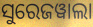
ସୁରେଜୱାଲା